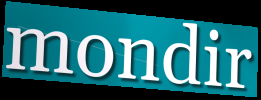
mondir